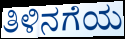
ತಿಳಿನಗೆಯ